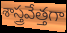
శాస్త్రవేత్తగా